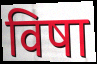
विषा